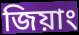
জিয়াং